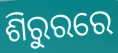
ଶିରୁରରେ